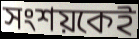
সংশয়কেই